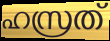
ഹസ്രത്